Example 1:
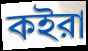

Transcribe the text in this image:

কইরা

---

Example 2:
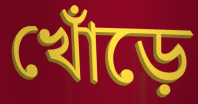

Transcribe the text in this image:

খোঁড়ে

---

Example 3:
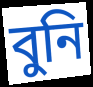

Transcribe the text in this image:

বুনি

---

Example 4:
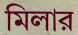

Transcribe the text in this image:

মিলার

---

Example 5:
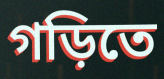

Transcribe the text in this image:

গড়িতে